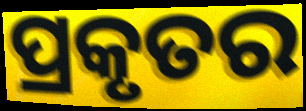
ପ୍ରକୃତର